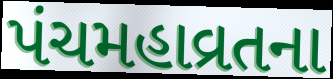
પંચમહાવ્રતના